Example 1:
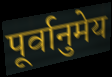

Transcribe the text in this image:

पूर्वानुमेय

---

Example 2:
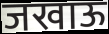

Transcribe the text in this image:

जखाऊ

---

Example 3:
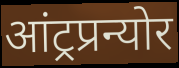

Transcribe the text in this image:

आंट्रप्रन्योर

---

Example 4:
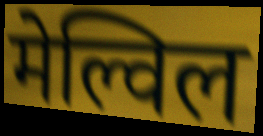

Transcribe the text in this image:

मेल्विल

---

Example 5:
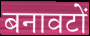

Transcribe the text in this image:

बनावटों